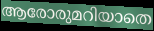
ആരോരുമറിയാതെ